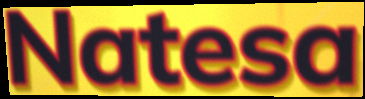
Natesa